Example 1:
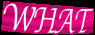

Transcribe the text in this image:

WHAT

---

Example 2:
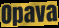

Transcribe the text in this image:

Opava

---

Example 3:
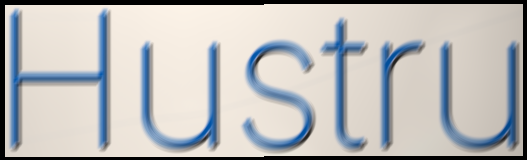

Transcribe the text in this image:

Hustru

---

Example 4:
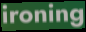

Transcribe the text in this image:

ironing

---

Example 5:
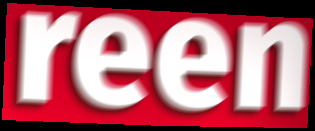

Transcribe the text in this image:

reen